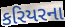
કરિયરના